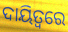
ଦାୟିତ୍ୱରେ